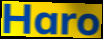
Haro